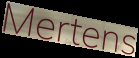
Mertens